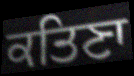
ਕਤਿਣਾ